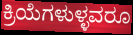
ಕ್ರಿಯೆಗಳುಳ್ಳವರೂ